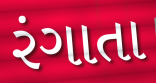
રંગાતા